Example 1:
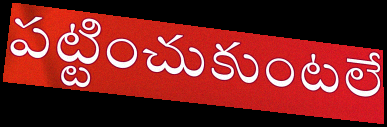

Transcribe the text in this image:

పట్టించుకుంటలే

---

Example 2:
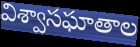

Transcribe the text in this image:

విశ్వాసఘాతాల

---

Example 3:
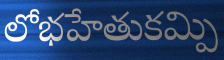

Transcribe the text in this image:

లోభహేతుకమ్పి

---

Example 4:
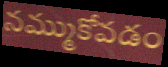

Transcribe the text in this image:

నమ్ముకోవడం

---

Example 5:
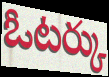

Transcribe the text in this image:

ఓటర్కు